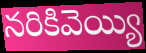
నరికివెయ్యి